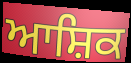
ਆਸ਼ਿਕ